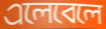
এলেবেলে